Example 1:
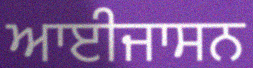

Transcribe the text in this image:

ਆਈਜਾਸਨ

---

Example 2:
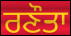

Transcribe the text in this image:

ਰਣੌਤਾ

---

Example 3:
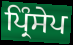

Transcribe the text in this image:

ਪ੍ਰਿੰਸੇਪ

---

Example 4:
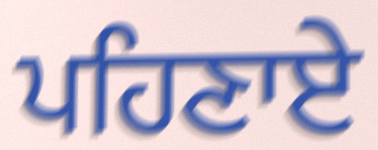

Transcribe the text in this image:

ਪਹਿਣਾਏ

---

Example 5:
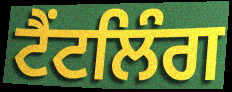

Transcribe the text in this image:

ਟੈਂਟਲਿੰਗ